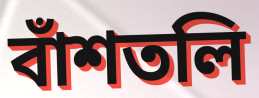
বাঁশতলি